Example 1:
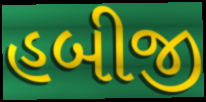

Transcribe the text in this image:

હબીજી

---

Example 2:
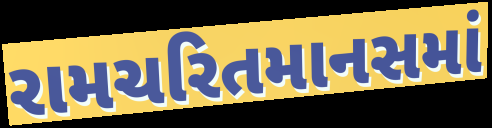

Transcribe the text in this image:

રામચરિતમાનસમાં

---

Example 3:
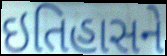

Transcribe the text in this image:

ઇતિહાસને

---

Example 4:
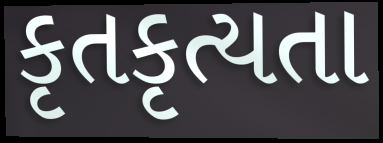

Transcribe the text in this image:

કૃતકૃત્યતા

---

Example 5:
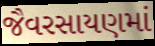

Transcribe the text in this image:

જૈવરસાયણમાં